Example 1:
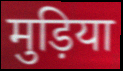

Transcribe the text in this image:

मुड़िया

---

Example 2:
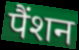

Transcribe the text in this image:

पैंशन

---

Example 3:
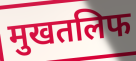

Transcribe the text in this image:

मुखतलिफ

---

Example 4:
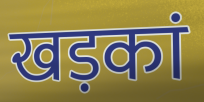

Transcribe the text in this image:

खड़कां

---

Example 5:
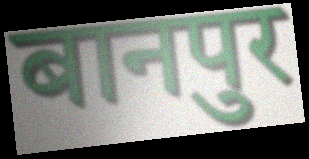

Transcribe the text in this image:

बानपुर